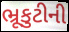
ભ્રૂકુટીની